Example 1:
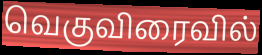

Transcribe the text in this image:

வெகுவிரைவில்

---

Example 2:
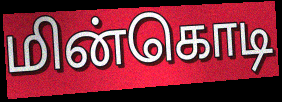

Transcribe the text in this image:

மின்கொடி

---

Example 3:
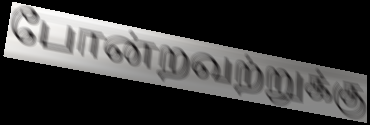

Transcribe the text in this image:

போன்றவற்றுக்கு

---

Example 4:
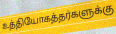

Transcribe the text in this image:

உத்தியோகத்தர்களுக்கு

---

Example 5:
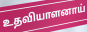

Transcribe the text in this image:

உதவியாளனாய்